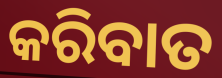
କରିବାତ